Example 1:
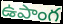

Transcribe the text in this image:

ఉపాంగ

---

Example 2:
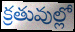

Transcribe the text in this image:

క్రతువుల్లో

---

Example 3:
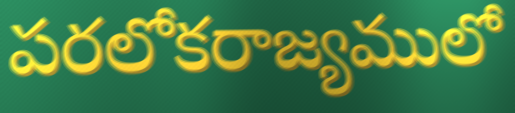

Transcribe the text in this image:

పరలోకరాజ్యములో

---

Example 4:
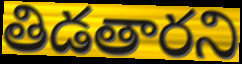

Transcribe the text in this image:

తిడతారని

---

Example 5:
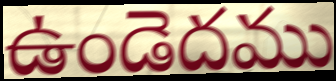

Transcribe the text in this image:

ఉండెదము